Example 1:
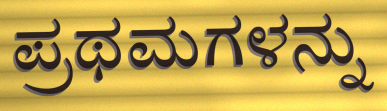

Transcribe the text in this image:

ಪ್ರಥಮಗಳನ್ನು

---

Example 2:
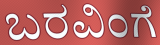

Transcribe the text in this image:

ಬರವಿಂಗೆ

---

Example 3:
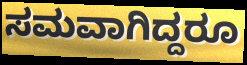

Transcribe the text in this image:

ಸಮವಾಗಿದ್ದರೂ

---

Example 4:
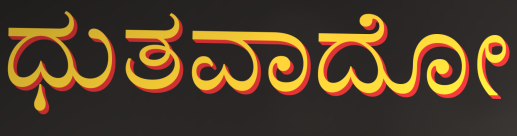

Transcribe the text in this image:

ಧುತವಾದೋ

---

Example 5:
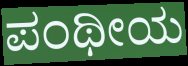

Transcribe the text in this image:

ಪಂಥೀಯ